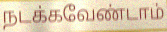
நடக்கவேண்டாம்